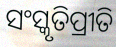
ସଂସ୍କୃତିପ୍ରୀତି